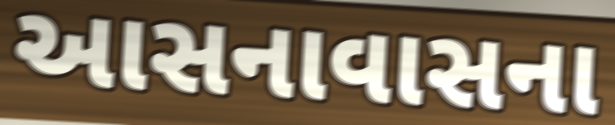
આસનાવાસના